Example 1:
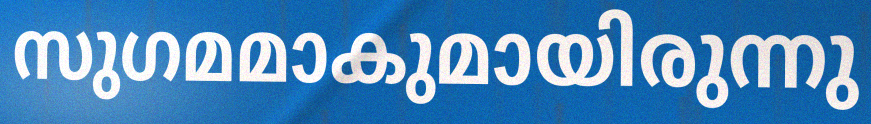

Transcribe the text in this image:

സുഗമമാകുമായിരുന്നു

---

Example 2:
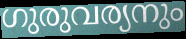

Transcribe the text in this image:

ഗുരുവര്യനും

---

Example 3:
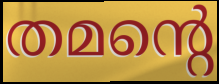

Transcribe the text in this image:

തമന്റെ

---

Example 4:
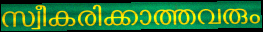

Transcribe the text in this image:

സ്വീകരിക്കാത്തവരും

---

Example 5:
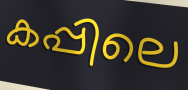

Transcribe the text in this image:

കപ്പിലെ